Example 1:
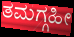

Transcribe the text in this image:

ತಮಗ್ಗಹೀ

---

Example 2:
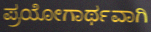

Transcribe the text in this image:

ಪ್ರಯೋಗಾರ್ಥವಾಗಿ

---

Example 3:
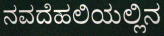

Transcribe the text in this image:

ನವದೆಹಲಿಯಲ್ಲಿನ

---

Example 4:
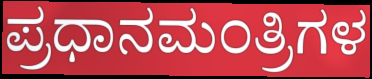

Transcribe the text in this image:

ಪ್ರಧಾನಮಂತ್ರಿಗಳ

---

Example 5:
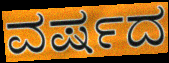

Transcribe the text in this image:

ವರ್ಷದ